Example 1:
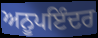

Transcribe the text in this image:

ਅਨੂਪਇੰਦਰ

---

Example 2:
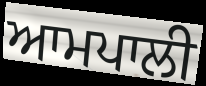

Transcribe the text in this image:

ਆਮਪਾਲੀ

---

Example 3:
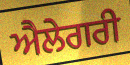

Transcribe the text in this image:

ਐਲੇਗਰੀ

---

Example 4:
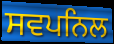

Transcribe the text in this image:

ਸਵਪਨਿਲ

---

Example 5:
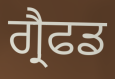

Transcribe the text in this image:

ਗ੍ਰੈਫਡ